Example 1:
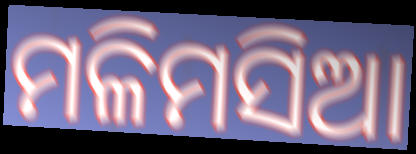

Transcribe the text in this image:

ମଳିମସିଆ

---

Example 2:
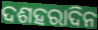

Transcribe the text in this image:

ଦଶହରାଦିନ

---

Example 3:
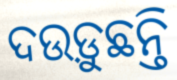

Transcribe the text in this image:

ଦଉଡ଼ୁଛନ୍ତି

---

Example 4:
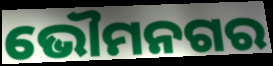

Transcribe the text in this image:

ଭୌମନଗର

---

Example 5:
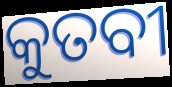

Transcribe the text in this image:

କୁତବୀ